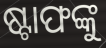
ଷ୍ଟାଫଙ୍କୁ